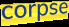
corpse